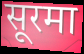
सूरमा